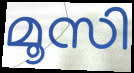
മൂസി